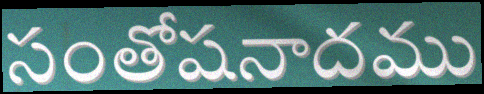
సంతోషనాదము